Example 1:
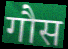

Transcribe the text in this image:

गौस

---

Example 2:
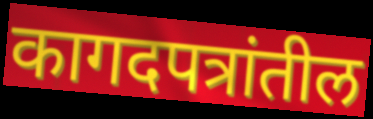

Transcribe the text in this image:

कागदपत्रांतील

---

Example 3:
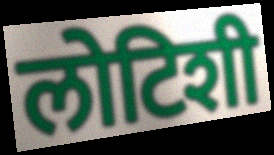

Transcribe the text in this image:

लोटिशी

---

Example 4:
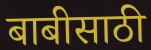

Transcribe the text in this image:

बाबीसाठी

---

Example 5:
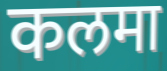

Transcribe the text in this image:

कलमा